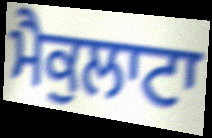
ਮੈਕੁਲਾਟਾ